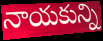
నాయకున్ని